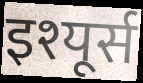
इश्यूर्स